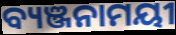
ବ୍ୟଞ୍ଜନାମୟୀ